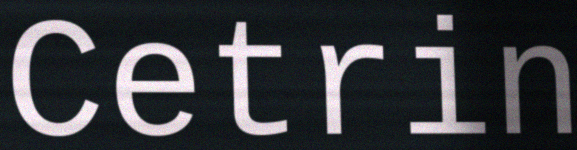
Cetrin